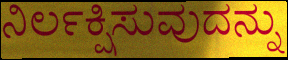
ನಿರ್ಲಕ್ಷಿಸುವುದನ್ನು